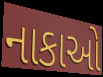
નાકાઓ